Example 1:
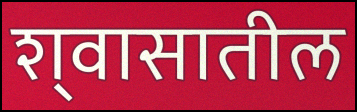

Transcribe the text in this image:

श्वासातील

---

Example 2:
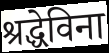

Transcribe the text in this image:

श्रद्धेविना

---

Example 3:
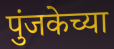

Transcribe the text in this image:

पुंजकेच्या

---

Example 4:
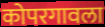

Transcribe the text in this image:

कोपरगावला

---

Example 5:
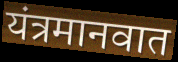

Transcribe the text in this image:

यंत्रमानवात